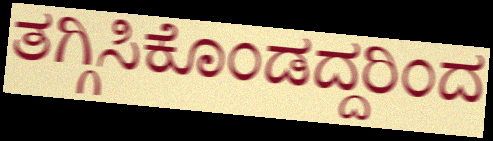
ತಗ್ಗಿಸಿಕೊಂಡದ್ದರಿಂದ